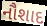
નૌશાદ